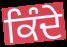
ਕਿੰਦੇ